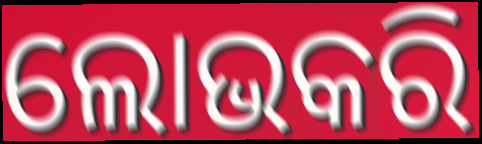
ଲୋଭକରି